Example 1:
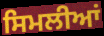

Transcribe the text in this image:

ਸਿਮਲੀਆਂ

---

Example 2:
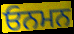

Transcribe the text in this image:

ਓਨਮਨ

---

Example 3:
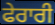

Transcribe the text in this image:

ਫੇਰਾਰੀ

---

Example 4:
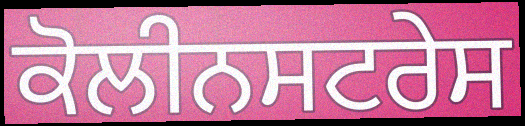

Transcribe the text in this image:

ਕੋਲੀਨਸਟਰੇਸ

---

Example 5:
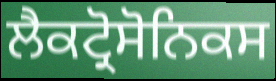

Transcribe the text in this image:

ਲੈਕਟ੍ਰੋਸੋਨਿਕਸ